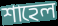
শাহেল